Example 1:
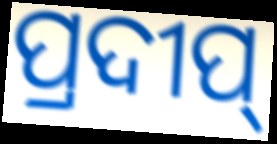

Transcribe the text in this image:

ପ୍ରଦୀପ୍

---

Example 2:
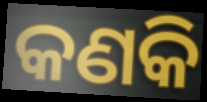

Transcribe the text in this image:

କଣକି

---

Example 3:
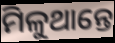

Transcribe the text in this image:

ମିଳୁଥାନ୍ତେ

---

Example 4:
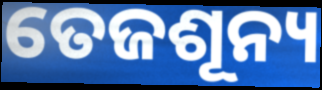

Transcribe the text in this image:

ତେଜଶୂନ୍ୟ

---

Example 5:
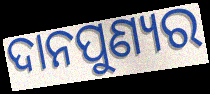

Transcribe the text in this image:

ଦାନପୁଣ୍ୟର